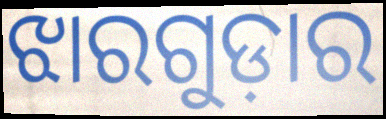
ଝାରଗୁଡ଼ାର